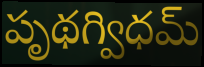
పృథగ్విధమ్